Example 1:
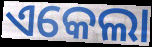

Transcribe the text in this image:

ଏକେଲା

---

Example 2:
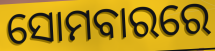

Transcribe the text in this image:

ସୋମବାରରେ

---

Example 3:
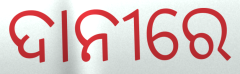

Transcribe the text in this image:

ଦାନୀରେ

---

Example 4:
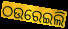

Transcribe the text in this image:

ଠଉରେଇଲି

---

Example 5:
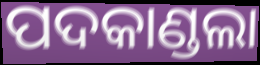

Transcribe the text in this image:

ପଦକାଣ୍ଡଲା